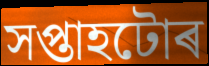
সপ্তাহটোৰ